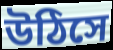
উঠিসে